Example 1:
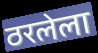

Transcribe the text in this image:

ठरलेला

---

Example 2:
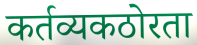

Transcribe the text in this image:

कर्तव्यकठोरता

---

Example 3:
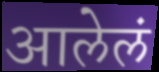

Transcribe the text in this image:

आलेलं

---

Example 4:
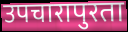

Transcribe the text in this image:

उपचारापुरता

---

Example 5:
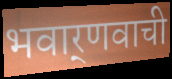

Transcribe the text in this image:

भवार्णवाची